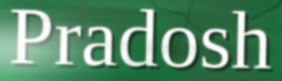
Pradosh